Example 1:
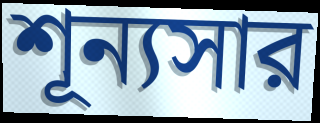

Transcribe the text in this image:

শূন্যসার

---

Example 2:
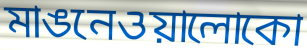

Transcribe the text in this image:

মাঙনেওয়ালোকো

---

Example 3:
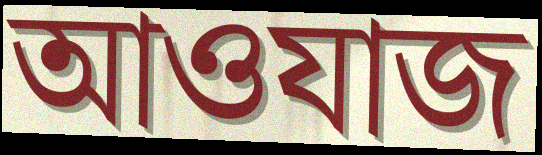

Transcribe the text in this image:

আওযাজ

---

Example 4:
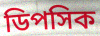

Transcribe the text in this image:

ডিপসিক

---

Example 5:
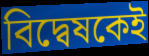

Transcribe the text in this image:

বিদ্বেষকেই